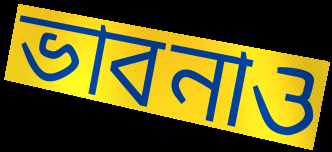
ভাবনাও